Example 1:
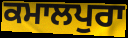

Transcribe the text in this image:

ਕਮਾਲਪੁਰਾ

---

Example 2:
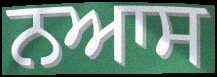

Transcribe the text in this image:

ਨਆਸ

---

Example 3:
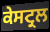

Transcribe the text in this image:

ਕੇਸਟ੍ਰਲ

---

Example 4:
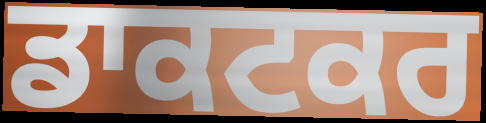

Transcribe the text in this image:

ਡਾਕਟਕਰ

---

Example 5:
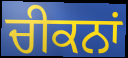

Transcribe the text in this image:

ਚੀਕਨਾਂ